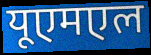
यूएमएल